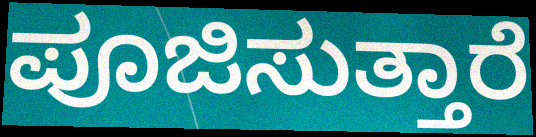
ಪೂಜಿಸುತ್ತಾರೆ